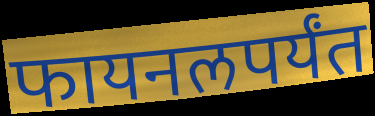
फायनलपर्यंत